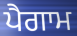
ਪੈਗਾਮ